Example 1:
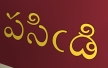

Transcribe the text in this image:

పసిఁడి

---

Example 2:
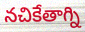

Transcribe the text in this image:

నచికేతాగ్ని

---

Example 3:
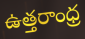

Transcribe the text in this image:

ఉత్తరాంధ్ర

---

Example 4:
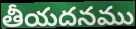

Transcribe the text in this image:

తీయదనము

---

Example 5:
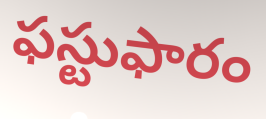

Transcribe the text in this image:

ఫస్టుఫారం